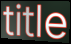
title